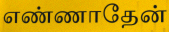
எண்ணாதேன்